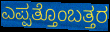
ಎಪ್ಪತ್ತೊಂಬತ್ತರ